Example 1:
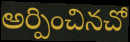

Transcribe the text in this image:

అర్పించినచో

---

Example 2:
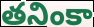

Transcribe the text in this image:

తనింకా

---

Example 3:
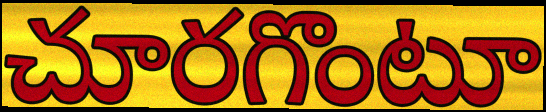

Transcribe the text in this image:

చూరగొంటూ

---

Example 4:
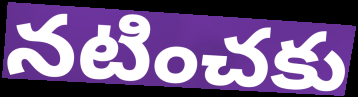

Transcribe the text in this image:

నటించకు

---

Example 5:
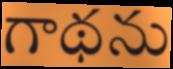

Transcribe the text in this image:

గాథను